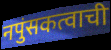
नपुंसकत्वाची